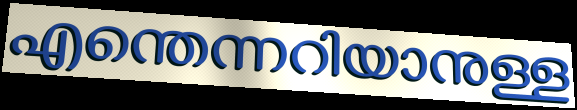
എന്തെന്നറിയാനുള്ള